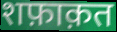
शफ़ाक़त